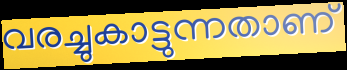
വരച്ചുകാട്ടുന്നതാണ്